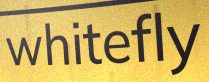
whitefly